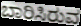
ಬಾರಿಸಿರುವ